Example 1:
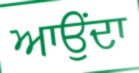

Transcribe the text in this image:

ਆਉਂਦਾ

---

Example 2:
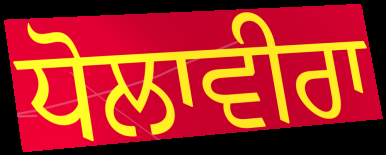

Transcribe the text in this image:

ਧੋਲਾਵੀਰਾ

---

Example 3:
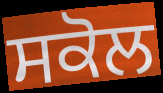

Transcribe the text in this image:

ਸਕੋਲ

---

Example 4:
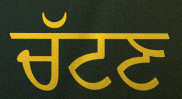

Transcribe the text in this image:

ਚੱਟਣ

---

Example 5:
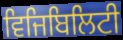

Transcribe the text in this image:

ਵਿਜਿਬਿਲਿਟੀ